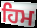
ਹਿਮ